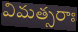
విమత్సరాః